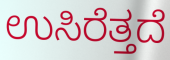
ಉಸಿರೆತ್ತದೆ